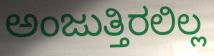
ಅಂಜುತ್ತಿರಲಿಲ್ಲ